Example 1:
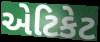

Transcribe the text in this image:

એટિકેટ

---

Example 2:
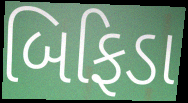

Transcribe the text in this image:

બિફિડા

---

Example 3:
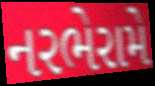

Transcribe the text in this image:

નરભેરામે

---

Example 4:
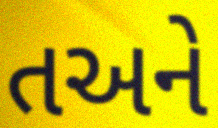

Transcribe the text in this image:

તઅને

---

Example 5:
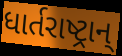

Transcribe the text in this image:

ધાર્તરાષ્ટ્રાન્